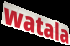
watala